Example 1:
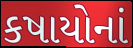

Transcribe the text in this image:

કષાયોનાં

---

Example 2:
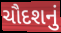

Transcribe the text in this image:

ચૌદશનું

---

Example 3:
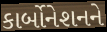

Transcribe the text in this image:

કાર્બોનેશનને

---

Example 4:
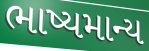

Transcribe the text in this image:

ભાષ્યમાન્ય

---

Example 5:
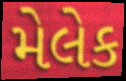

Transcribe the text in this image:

મેલેક